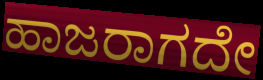
ಹಾಜರಾಗದೇ